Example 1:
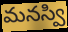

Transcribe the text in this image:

మనస్వి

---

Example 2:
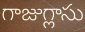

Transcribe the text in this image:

గాజుగ్లాసు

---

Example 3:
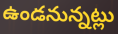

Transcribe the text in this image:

ఉండనున్నట్లు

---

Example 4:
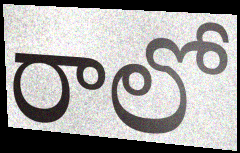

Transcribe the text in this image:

రాలో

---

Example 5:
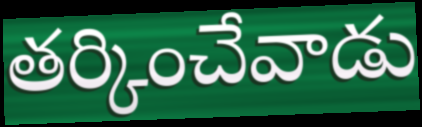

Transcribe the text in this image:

తర్కించేవాడు